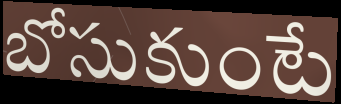
బోసుకుంటే